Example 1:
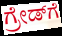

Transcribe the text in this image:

ಗ್ರೇಡ್‌ಗೆ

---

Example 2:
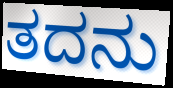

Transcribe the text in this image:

ತದನು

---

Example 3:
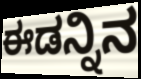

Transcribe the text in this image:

ಈಡನ್ನಿನ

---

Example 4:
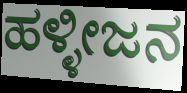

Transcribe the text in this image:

ಹಳ್ಳೀಜನ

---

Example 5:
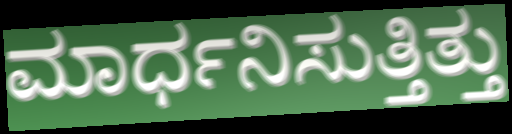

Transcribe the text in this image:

ಮಾರ್ಧನಿಸುತ್ತಿತ್ತು